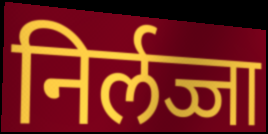
निर्लज्जा